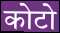
कोटो